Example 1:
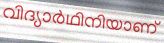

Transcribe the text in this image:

വിദ്യാർഥിനിയാണ്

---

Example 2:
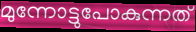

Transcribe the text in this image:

മുന്നോട്ടുപോകുന്നത്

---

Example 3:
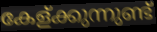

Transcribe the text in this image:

കേള്ക്കുന്നുണ്ട്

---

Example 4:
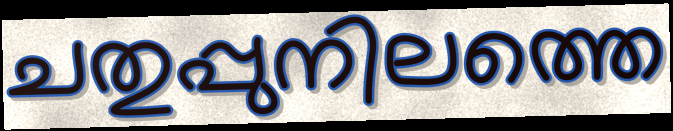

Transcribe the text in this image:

ചതുപ്പുനിലത്തെ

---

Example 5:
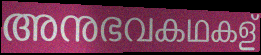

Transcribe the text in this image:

അനുഭവകഥകള്